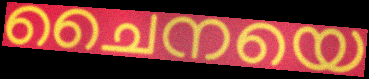
ചൈനയെ